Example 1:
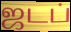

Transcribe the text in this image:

ஜடப்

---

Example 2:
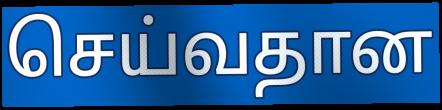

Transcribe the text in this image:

செய்வதான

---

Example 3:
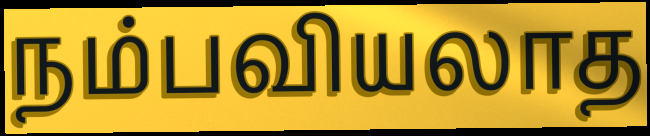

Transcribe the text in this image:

நம்பவியலாத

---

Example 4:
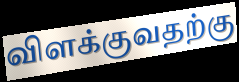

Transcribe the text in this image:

விளக்குவதற்கு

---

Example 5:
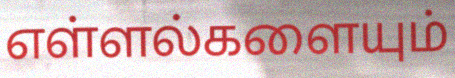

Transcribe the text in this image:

எள்ளல்களையும்